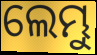
ଲେମ୍ଭୁ